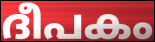
ദീപകം